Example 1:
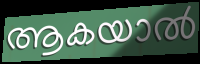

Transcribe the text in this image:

ആകയാൽ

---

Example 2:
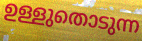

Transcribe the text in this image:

ഉള്ളുതൊടുന്ന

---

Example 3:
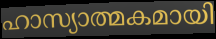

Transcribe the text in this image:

ഹാസ്യാത്മകമായി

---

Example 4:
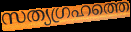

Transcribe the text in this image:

സത്യഗ്രഹത്തെ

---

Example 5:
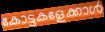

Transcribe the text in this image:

കോട്ടകളേക്കാൾ